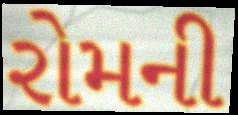
રોમની